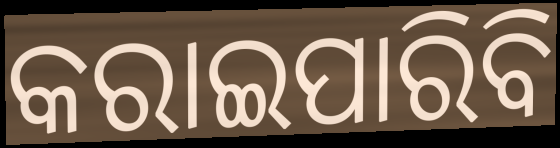
କରାଇପାରିବି